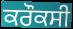
ਕਰੌਕਸੀ